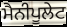
ਮੈਨੀਪੂਲੇਟ